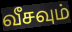
வீசவும்